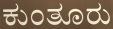
ಕುಂತೂರು